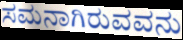
ಸಮನಾಗಿರುವವನು